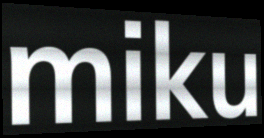
miku